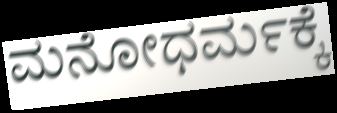
ಮನೋಧರ್ಮಕ್ಕೆ